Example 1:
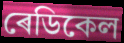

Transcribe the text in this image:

ৰেডিকেল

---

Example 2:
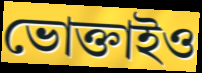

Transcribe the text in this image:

ভোক্তাইও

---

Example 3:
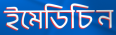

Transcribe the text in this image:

ইমেডিচিন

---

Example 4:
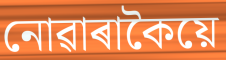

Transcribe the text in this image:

নোৱাৰাকৈয়ে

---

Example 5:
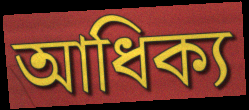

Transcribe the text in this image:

আধিক্য